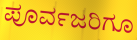
ಪೂರ್ವಜರಿಗೂ